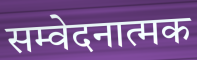
सम्वेदनात्मक